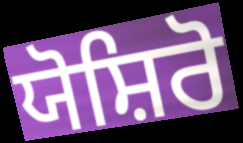
ਯੋਸ਼ਿਰੋ